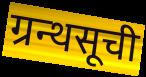
ग्रन्थसूची